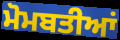
ਮੋਮਬਤੀਆਂ